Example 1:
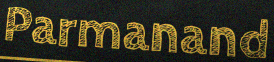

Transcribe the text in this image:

Parmanand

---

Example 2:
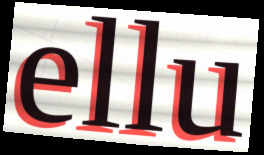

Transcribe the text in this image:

ellu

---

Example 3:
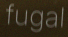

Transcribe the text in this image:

fugal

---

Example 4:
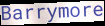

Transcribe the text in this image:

Barrymore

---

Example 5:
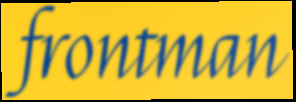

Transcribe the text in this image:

frontman